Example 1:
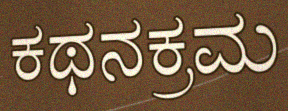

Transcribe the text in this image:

ಕಥನಕ್ರಮ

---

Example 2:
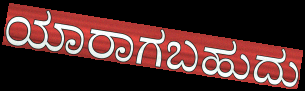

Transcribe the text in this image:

ಯಾರಾಗಬಹುದು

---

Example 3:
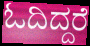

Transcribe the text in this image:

ಓದಿದ್ದರೆ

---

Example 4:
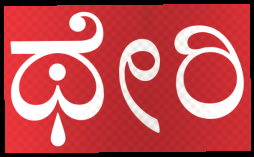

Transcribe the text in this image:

ಥೇರಿ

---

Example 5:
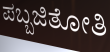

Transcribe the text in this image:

ಪಬ್ಬಜಿತೋತಿ